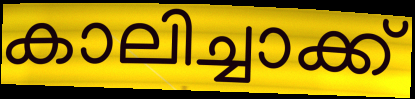
കാലിച്ചാക്ക്